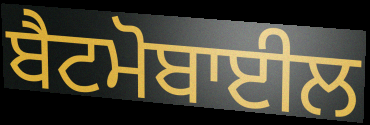
ਬੈਟਮੋਬਾਈਲ